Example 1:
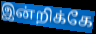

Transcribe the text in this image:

இன்றிக்கே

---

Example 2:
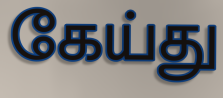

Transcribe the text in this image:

கேய்து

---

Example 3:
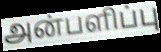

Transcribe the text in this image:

அன்பளிப்பு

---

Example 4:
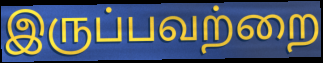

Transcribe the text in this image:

இருப்பவற்றை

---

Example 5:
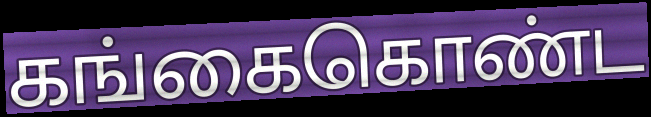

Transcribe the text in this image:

கங்கைகொண்ட